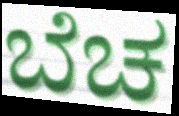
ಬೆಚ